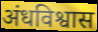
अंधविश्वास